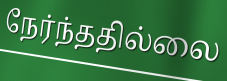
நேர்ந்ததில்லை